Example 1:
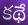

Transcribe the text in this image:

కథే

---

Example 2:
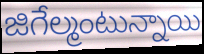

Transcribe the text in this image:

జిగేల్మంటున్నాయి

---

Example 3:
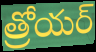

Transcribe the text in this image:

త్రోయర్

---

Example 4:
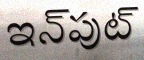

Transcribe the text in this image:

ఇన్‌పుట్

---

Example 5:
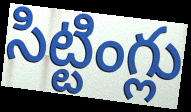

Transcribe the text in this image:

సిట్టింగ్లు